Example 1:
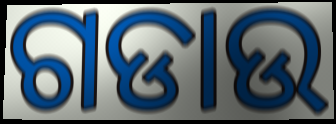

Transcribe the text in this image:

ଗଡାଉ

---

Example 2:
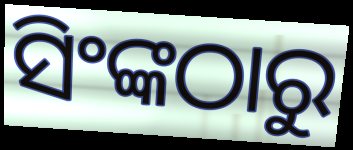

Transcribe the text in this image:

ସିଂଙ୍କଠାରୁ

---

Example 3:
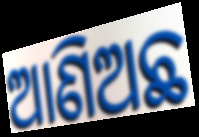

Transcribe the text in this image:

ଆଣିଅଛ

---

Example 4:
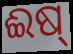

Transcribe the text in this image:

ଈଷ୍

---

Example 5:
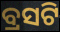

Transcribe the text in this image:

ବ୍ରସଟି